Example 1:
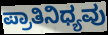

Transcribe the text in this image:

ಪ್ರಾತಿನಿಧ್ಯವು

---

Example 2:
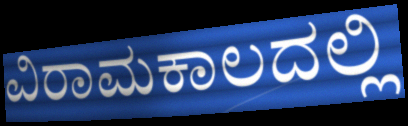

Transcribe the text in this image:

ವಿರಾಮಕಾಲದಲ್ಲಿ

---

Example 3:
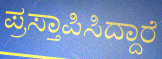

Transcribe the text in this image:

ಪ್ರಸ್ತಾಪಿಸಿದ್ದಾರೆ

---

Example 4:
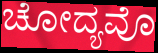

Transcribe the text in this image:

ಚೋದ್ಯವೊ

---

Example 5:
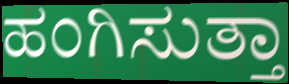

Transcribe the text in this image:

ಹಂಗಿಸುತ್ತಾ